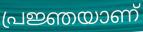
പ്രജ്ഞയാണ്